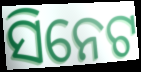
ସିନେଟ